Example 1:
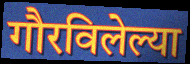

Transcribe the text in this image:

गौरविलेल्या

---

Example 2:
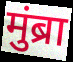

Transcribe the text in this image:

मुंब्रा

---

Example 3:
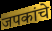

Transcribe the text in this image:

जपकांचे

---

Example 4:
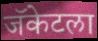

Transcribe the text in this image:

जॅकेटला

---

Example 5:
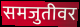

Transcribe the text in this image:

समजुतीवर